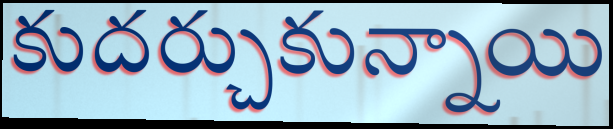
కుదర్చుకున్నాయి